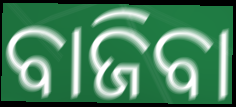
ବାଜିବା